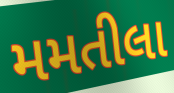
મમતીલા